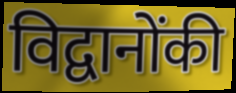
विद्वानोंकी